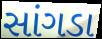
સાંગડા